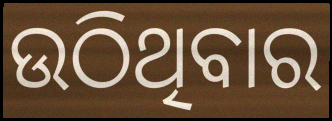
ଉଠିଥିବାର